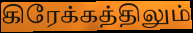
கிரேக்கத்திலும்